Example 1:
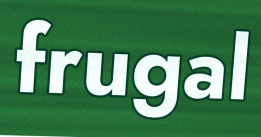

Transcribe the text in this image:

frugal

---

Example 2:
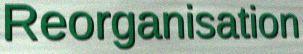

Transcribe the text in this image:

Reorganisation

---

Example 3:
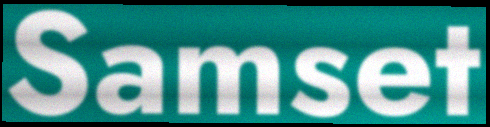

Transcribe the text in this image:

Samset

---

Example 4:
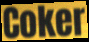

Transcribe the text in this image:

Coker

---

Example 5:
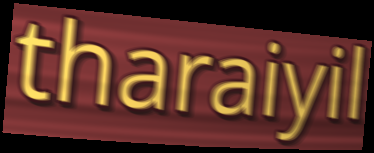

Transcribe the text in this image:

tharaiyil